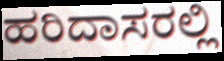
ಹರಿದಾಸರಲ್ಲಿ